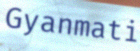
Gyanmati